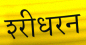
श्रीधरन